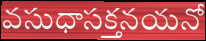
వసుధాసక్తనయనో